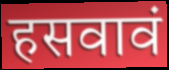
हसवावं